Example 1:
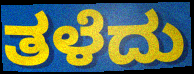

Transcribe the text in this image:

ತಳೆದು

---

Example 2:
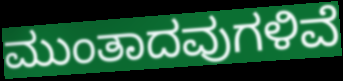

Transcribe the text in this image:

ಮುಂತಾದವುಗಳಿವೆ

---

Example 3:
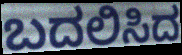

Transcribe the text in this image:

ಬದಲಿಸಿದ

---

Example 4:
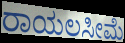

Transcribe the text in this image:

ರಾಯಲಸೀಮೆ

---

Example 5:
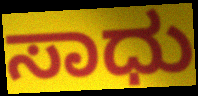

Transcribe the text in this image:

ಸಾಧು